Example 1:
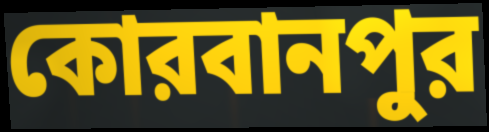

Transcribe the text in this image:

কোরবানপুর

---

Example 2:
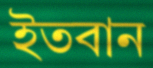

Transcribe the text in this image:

ইতবান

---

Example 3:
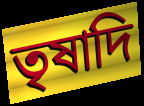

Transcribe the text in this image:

তৃষাদি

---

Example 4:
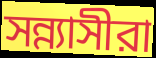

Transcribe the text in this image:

সন্ন্যাসীরা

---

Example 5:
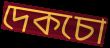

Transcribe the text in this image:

দেকচো